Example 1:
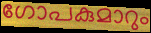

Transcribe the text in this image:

ഗോപകുമാറും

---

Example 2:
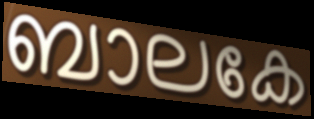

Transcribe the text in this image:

ബാലകേ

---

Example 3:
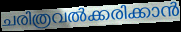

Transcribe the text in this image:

ചരിത്രവൽക്കരിക്കാൻ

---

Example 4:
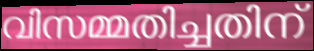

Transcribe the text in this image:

വിസമ്മതിച്ചതിന്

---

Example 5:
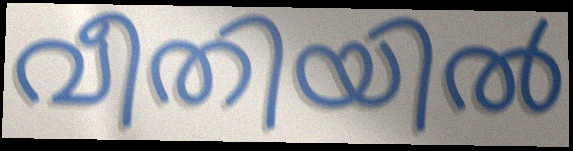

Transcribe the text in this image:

വീതിയിൽ